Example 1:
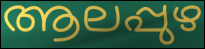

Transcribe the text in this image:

ആലപ്പുഴ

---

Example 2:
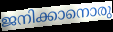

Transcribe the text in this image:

ജനിക്കാനൊരു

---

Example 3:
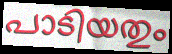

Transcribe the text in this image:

പാടിയതും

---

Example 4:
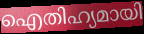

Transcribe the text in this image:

ഐതിഹ്യമായി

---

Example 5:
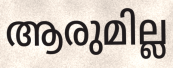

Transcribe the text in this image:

ആരുമില്ല